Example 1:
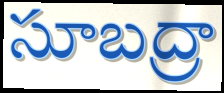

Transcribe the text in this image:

సూబద్రా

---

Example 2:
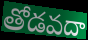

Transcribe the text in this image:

తోడవదా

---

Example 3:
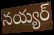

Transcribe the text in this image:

నయ్యర్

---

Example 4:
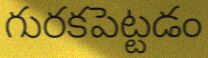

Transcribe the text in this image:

గురకపెట్టడం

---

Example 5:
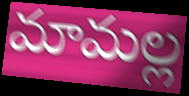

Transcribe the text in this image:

మామల్ల